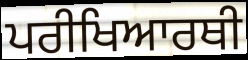
ਪਰੀਖਿਆਰਥੀ